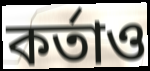
কর্তাও